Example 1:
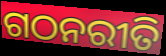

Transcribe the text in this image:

ଗଠନରୀତି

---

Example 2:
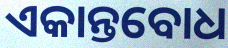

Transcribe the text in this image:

ଏକାନ୍ତବୋଧ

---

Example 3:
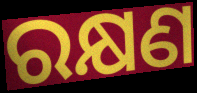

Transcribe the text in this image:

ରକ୍ଷଣ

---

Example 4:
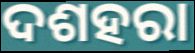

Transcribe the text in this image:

ଦଶହରା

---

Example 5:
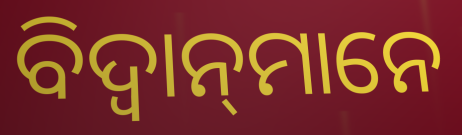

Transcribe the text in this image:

ବିଦ୍ୱାନ୍‌ମାନେ